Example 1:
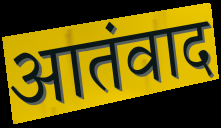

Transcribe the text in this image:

आतंवाद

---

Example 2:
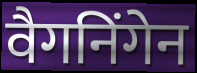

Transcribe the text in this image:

वैगनिंगेन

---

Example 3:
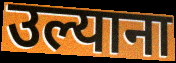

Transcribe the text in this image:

उल्याना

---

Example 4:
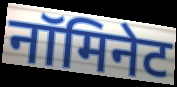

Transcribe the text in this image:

नॉमिनेट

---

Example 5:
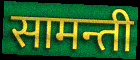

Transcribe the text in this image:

सामन्ती